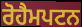
ਰੋਹੈਮਪਟਨ